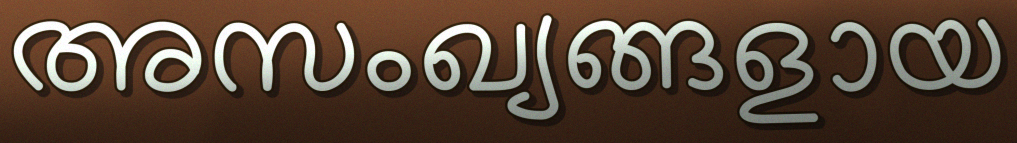
അസംഖ്യങ്ങളായ